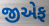
જીએફ